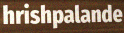
hrishpalande